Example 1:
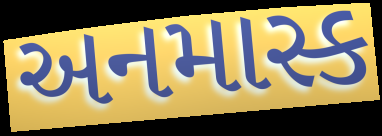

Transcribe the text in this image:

અનમાસ્ક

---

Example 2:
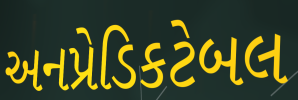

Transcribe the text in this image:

અનપ્રેડિકટેબલ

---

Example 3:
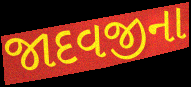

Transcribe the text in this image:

જાદવજીના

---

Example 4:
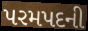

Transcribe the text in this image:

પરમપદની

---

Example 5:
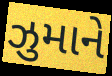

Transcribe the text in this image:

ઝુમાને